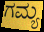
ಗಮ್ಯ